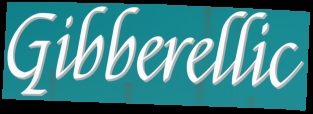
Gibberellic